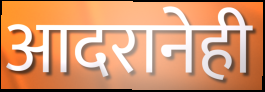
आदरानेही